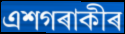
এশগৰাকীৰ